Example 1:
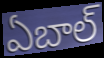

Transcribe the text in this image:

ఏబాల్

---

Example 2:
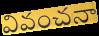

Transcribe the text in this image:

వివంచనా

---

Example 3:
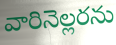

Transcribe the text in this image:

వారినెల్లరను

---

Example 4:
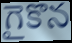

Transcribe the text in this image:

గైకొన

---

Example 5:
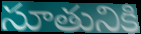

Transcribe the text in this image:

సూతునికి